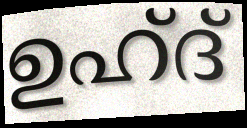
ഉഹ്ദ്